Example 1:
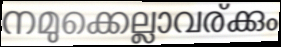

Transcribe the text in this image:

നമുക്കെല്ലാവര്ക്കും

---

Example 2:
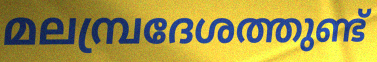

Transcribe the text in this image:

മലമ്പ്രദേശത്തുണ്ട്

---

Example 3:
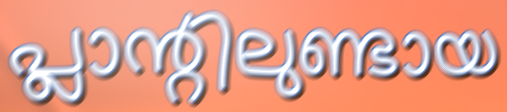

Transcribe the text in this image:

പ്ലാന്റിലുണ്ടായ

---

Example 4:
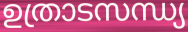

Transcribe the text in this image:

ഉത്രാടസന്ധ്യ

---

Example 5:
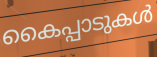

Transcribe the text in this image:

കൈപ്പാടുകൾ